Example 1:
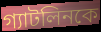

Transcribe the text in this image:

গ্যাটলিনকে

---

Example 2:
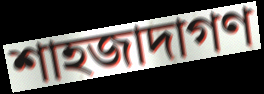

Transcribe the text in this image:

শাহজাদাগণ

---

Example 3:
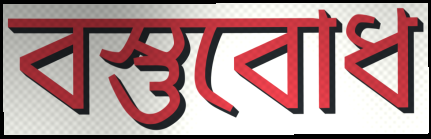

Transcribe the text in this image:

বস্তুবোধ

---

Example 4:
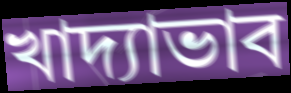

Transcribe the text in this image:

খাদ্যাভাব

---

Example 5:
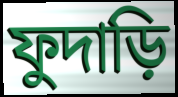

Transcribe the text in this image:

ফুদাড়ি